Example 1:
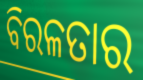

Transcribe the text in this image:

ବିରଳତାର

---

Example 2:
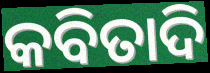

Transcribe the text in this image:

କବିତାଦି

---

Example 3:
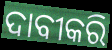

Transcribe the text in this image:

ଦାବୀକରି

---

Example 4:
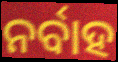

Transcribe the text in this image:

ନର୍ବାହ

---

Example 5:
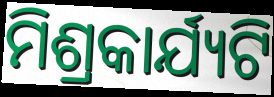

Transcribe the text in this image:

ମିଶ୍ରକାର୍ଯ୍ୟଟି